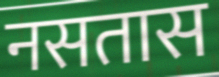
नसतास